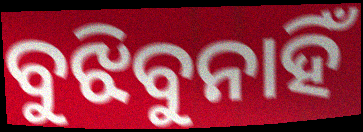
ବୁଝିବୁନାହିଁ